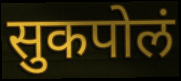
सुकपोलं